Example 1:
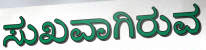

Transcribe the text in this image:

ಸುಖವಾಗಿರುವ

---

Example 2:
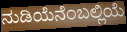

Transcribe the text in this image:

ನುಡಿಯೆನೆಂಬಲ್ಲಿಯೆ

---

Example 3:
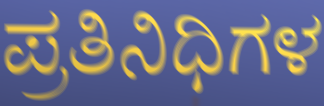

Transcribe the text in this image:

ಪ್ರತಿನಿಧಿಗಳ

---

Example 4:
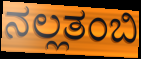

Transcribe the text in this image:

ನಲ್ಲತಂಬಿ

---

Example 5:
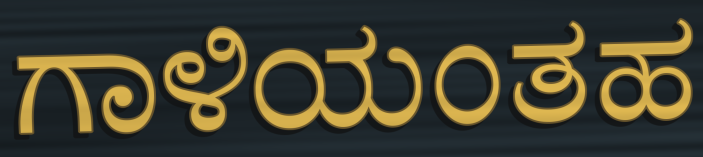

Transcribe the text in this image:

ಗಾಳಿಯಂತಹ